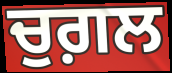
ਚੁਗ਼ਲ